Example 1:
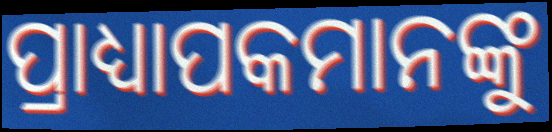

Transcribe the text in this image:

ପ୍ରାଧ୍ୟାପକମାନଙ୍କୁ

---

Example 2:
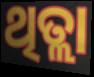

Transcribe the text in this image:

ଥିତ୍ଲା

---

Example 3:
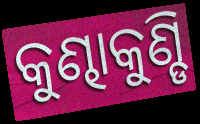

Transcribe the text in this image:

କୁଣ୍ଢାକୁଣ୍ଡି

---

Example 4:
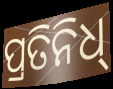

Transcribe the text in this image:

ପ୍ରତିନିଧ୍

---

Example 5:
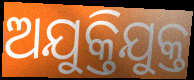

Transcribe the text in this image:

ଅଯୁକ୍ତିଯୁକ୍ତ